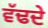
ਵੱਢਦੇ